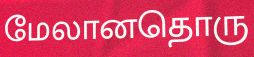
மேலானதொரு